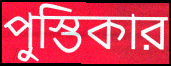
পুস্তিকার